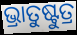
ଭ୍ରାତୁଷ୍ଟୁତ୍ର